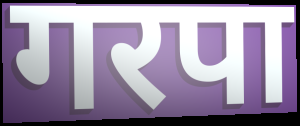
गरपा